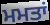
ਮਮਤਾਂ